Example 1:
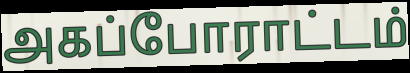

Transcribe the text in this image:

அகப்போராட்டம்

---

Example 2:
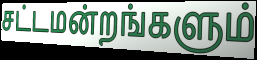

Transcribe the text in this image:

சட்டமன்றங்களும்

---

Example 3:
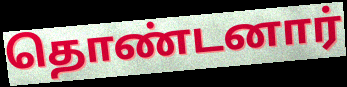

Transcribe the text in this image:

தொண்டனார்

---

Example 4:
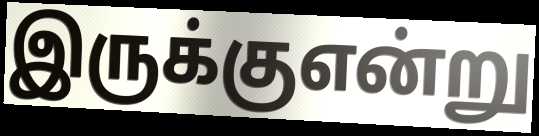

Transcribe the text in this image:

இருக்குஎன்று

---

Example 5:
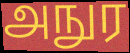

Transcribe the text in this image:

அநுர